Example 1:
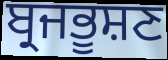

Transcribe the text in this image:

ਬ੍ਰਜਭੂਸ਼ਣ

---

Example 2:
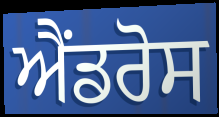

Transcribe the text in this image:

ਐਂਡਰੋਸ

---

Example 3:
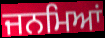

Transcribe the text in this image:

ਜਨਮਿਆਂ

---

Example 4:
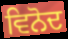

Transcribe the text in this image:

ਵਿਨੋਦ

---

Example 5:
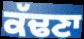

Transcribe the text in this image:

ਕੱਢਣਾ